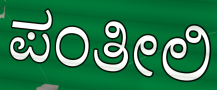
ಪಂತೀಲಿ